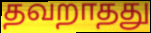
தவறாதது